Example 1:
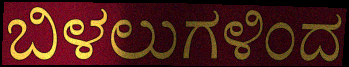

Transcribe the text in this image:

ಬಿಳಲುಗಳಿಂದ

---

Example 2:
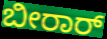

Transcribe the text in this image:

ಬೀರಾರ್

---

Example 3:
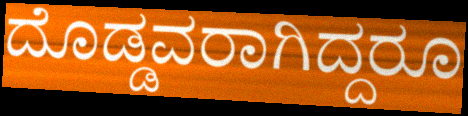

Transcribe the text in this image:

ದೊಡ್ಡವರಾಗಿದ್ದರೂ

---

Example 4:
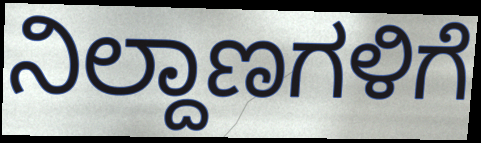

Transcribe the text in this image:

ನಿಲ್ದಾಣಗಳಿಗೆ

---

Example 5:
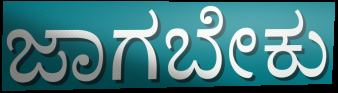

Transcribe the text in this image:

ಜಾಗಬೇಕು